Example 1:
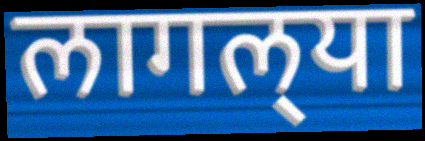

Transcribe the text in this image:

लागल्या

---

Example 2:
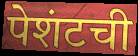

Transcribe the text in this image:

पेशंटची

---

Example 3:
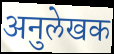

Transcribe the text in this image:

अनुलेखक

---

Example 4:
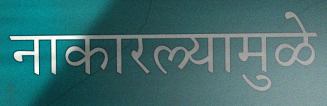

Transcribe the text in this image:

नाकारल्यामुळे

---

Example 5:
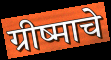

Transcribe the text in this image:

ग्रीष्माचे